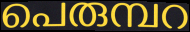
പെരുമ്പറ